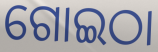
ଗୋଇଠା